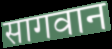
सागवान